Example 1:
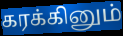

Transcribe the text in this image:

கரக்கினும்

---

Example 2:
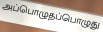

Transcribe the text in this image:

அப்பொழுதப்பொழுது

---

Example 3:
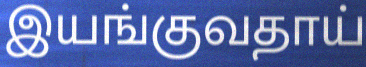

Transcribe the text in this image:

இயங்குவதாய்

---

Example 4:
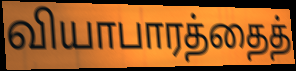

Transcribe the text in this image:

வியாபாரத்தைத்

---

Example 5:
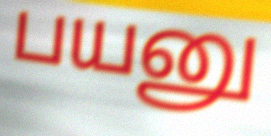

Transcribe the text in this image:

பயனு